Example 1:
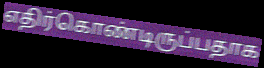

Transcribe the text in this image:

எதிர்கொண்டிருப்பதாக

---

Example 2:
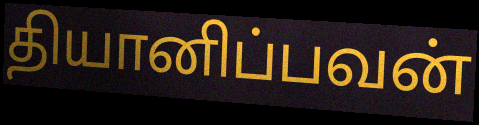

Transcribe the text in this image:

தியானிப்பவன்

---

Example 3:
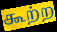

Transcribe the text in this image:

கூற்ற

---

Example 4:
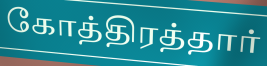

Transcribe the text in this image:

கோத்திரத்தார்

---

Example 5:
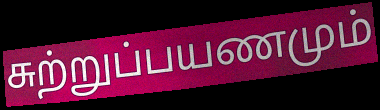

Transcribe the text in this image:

சுற்றுப்பயணமும்